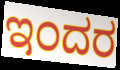
ಇಂದರ